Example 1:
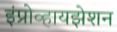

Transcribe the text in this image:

इंप्रोव्हायझेशन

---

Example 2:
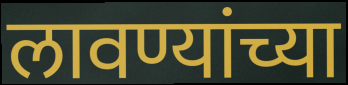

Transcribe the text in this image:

लावण्यांच्या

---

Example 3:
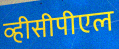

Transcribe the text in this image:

व्हीसीपीएल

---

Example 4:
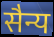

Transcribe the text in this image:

सैन्‍य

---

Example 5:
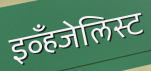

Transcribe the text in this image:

इव्हँजेलिस्ट